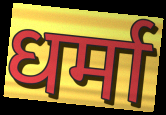
धर्मा